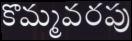
కొమ్మవరపు